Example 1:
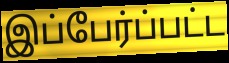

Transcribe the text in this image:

இப்பேர்ப்பட்ட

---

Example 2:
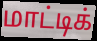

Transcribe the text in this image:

மாட்டிக்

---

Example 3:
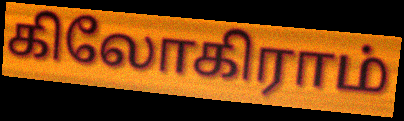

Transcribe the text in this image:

கிலோகிராம்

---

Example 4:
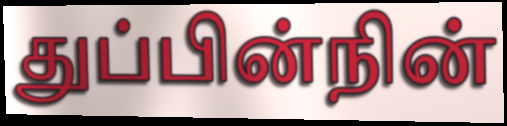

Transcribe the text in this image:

துப்பின்நின்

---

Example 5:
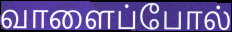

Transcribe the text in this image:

வாளைப்போல்